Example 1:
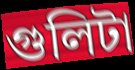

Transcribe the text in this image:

গুলিটা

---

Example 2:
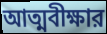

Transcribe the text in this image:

আত্মবীক্ষার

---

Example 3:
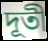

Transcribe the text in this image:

দূতী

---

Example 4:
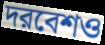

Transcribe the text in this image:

দরবেশও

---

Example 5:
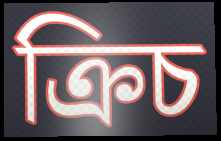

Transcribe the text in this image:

ক্রিচ